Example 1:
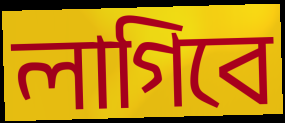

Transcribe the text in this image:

লাগিবে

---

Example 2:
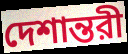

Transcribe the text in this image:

দেশান্তরী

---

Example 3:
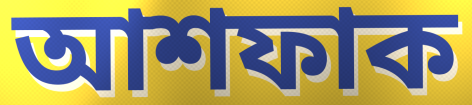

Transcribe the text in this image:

আশফাক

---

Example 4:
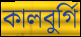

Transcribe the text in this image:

কালবুর্গি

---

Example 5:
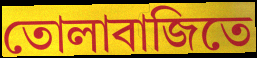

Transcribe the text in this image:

তোলাবাজিতে